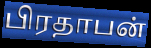
பிரதாபன்